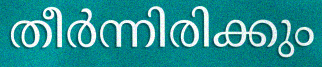
തീർന്നിരിക്കും